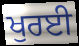
ਖੁਰਈ